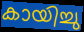
കായിച്ചു